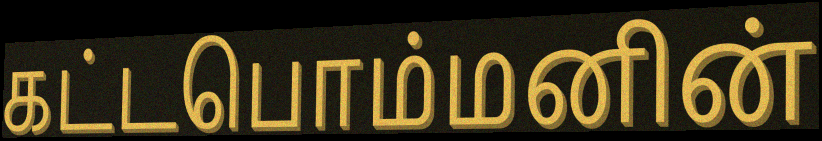
கட்டபொம்மனின்